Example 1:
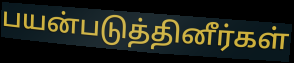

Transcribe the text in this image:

பயன்படுத்தினீர்கள்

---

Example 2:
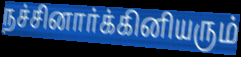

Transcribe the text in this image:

நச்சினார்க்கினியரும்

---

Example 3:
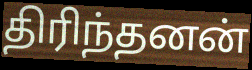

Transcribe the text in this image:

திரிந்தனன்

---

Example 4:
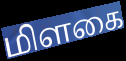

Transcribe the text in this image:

மிளகை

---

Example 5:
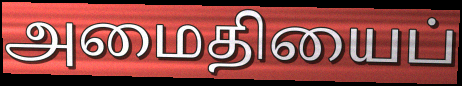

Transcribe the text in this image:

அமைதியைப்